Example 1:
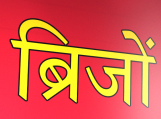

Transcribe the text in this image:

ब्रिजों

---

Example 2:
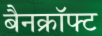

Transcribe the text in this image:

बैनक्रॉफ्ट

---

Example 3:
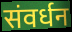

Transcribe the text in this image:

संवर्धन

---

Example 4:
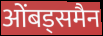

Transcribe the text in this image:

ओंबड्समैन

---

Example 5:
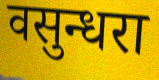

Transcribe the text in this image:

वसुन्धरा